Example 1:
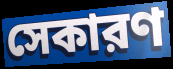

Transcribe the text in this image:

সেকারণ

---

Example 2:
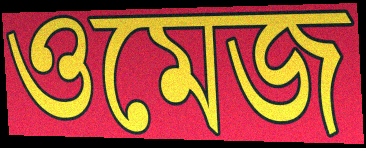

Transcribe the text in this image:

ওমেজ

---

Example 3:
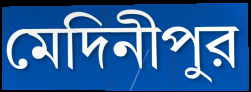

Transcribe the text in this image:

মেদিনীপুর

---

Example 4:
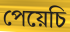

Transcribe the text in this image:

পেয়েচি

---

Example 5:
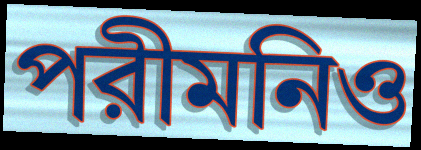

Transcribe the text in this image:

পরীমনিও